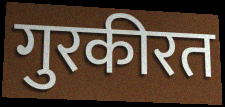
गुरकीरत